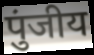
पुंजीय